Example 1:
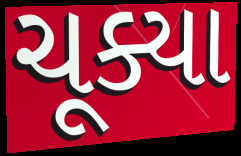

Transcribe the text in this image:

ચૂક્યા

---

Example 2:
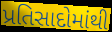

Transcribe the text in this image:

પ્રતિસાદોમાંથી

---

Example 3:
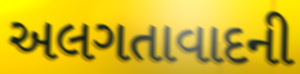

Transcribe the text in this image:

અલગતાવાદની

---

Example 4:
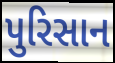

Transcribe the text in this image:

પુરિસાન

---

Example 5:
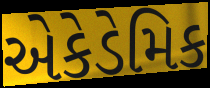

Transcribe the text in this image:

એકેડેમિક